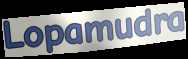
Lopamudra